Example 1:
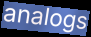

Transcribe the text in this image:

analogs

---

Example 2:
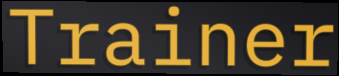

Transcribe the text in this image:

Trainer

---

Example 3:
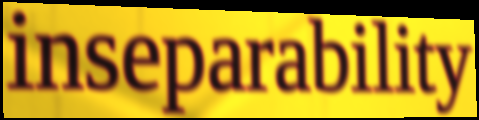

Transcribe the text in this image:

inseparability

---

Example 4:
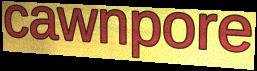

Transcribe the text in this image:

cawnpore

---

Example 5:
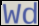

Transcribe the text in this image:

Wd